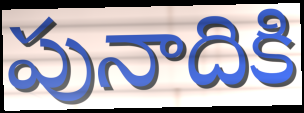
పునాదికి